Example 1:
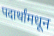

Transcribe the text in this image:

पदार्थांमधून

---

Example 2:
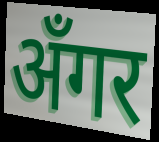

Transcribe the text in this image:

अँगर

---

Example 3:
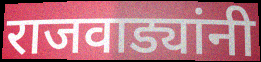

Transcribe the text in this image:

राजवाड्यांनी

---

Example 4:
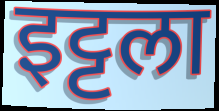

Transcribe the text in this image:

इट्टला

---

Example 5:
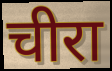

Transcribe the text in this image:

चीरा